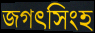
জগৎসিংহ